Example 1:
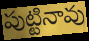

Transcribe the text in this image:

పుట్టినావు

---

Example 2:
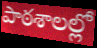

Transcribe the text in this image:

పాఠశాలల్లో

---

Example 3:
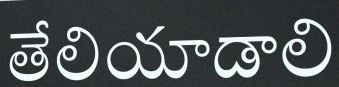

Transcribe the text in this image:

తేలియాడాలి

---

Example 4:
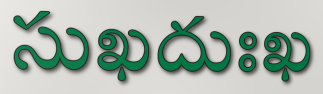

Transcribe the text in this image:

సుఖదుఃఖ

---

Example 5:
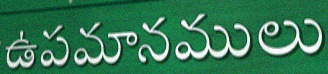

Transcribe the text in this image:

ఉపమానములు